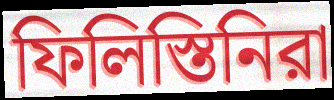
ফিলিস্তিনিরা